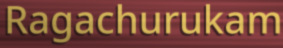
Ragachurukam